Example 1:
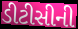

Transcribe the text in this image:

ડીટીસીની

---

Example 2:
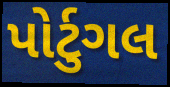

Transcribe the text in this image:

પોર્ટુગલ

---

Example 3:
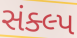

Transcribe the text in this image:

સંક્લ્પ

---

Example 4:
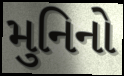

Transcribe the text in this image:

મુનિનો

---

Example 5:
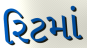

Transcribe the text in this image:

રિટમાં